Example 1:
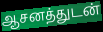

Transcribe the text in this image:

ஆசனத்துடன்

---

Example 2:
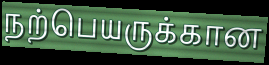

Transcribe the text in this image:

நற்பெயருக்கான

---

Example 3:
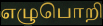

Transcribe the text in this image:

எழுபொறி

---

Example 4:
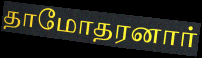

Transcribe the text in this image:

தாமோதரனார்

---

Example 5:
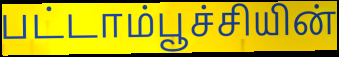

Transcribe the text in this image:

பட்டாம்பூச்சியின்